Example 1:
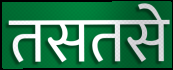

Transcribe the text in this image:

तसतसे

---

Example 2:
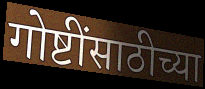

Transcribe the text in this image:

गोष्टींसाठीच्या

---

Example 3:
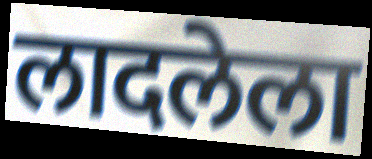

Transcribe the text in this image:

लादलेला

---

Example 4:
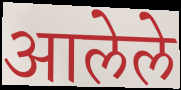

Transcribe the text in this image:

आलेले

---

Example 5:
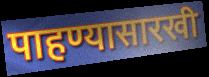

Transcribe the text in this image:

पाहण्यासारखी